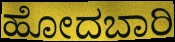
ಹೋದಬಾರಿ